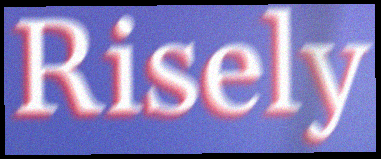
Risely